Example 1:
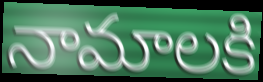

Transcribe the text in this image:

నామాలకి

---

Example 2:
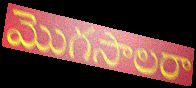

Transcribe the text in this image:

మొగసాలరా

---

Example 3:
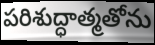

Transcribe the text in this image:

పరిశుద్ధాత్మతోను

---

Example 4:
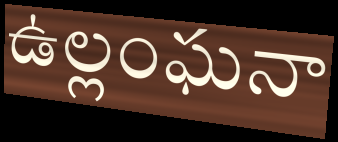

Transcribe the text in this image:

ఉల్లంఘనా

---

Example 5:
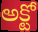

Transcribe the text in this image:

అక్టో